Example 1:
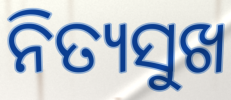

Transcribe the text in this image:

ନିତ୍ୟସୁଖ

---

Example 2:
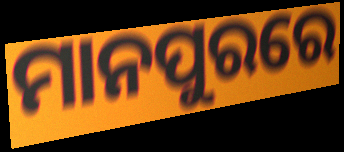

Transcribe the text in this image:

ମାନପୁରରେ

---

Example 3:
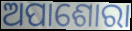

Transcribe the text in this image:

ଅପାଶୋରା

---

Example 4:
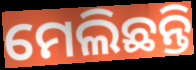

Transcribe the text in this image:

ମେଲିଛନ୍ତି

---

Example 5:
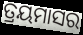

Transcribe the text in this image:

ତ୍ରୟମାସର